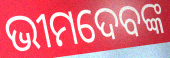
ଭୀମଦେବଙ୍କ